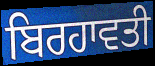
ਬਿਰਹਾਵਤੀ